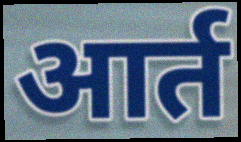
आर्त